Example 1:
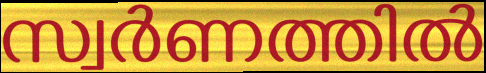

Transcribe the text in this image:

സ്വർണത്തിൽ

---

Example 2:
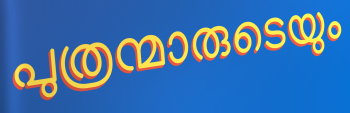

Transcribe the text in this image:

പുത്രന്മാരുടെയും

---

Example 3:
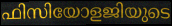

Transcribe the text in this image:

ഫിസിയോളജിയുടെ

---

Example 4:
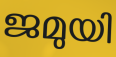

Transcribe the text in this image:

ജമുയി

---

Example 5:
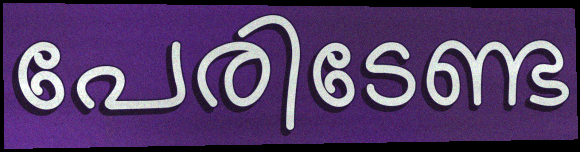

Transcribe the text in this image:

പേരിടേണ്ട